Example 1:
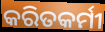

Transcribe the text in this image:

କରିତକର୍ମୀ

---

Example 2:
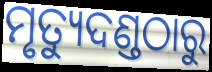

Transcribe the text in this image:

ମୃତ୍ୟୁଦଣ୍ଡଠାରୁ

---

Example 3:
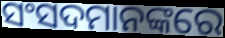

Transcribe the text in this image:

ସଂସଦମାନଙ୍କରେ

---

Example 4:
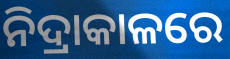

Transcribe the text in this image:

ନିଦ୍ରାକାଳରେ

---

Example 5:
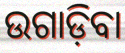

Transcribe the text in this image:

ଉଗାଡ଼ିବା